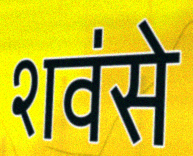
शव॑से